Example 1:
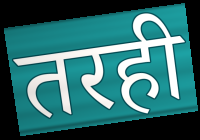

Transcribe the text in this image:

तरही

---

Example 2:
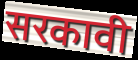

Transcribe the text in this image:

सरकावी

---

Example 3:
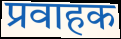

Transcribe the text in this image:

प्रवाहक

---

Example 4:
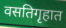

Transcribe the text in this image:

वसतिगृहात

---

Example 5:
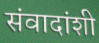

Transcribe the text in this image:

संवादांशी